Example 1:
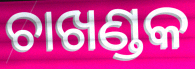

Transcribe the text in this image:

ଚାଖଣ୍ଡକ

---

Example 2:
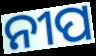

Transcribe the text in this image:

ନୀପ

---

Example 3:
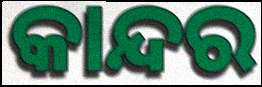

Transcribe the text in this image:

କାନ୍ଦର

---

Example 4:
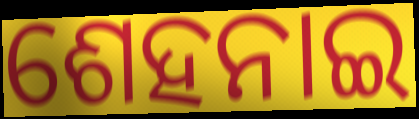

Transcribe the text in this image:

ଶେହନାଇ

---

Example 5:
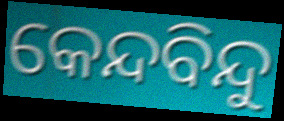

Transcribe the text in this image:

କେନ୍ଦବିନ୍ଦୁ